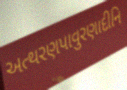
અત્થરણપાવુરણાદીનિ